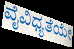
ವೈವಿಧ್ಯತೆಯೇ